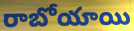
రాబోయాయి